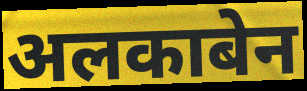
अलकाबेन